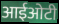
आईओटी